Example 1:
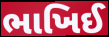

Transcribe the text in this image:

ભાખિઈ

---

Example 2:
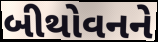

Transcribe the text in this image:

બીથોવનને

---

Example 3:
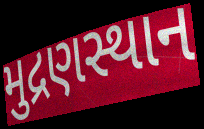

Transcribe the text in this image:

મુદ્રણસ્થાન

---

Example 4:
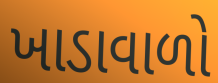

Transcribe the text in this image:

ખાડાવાળો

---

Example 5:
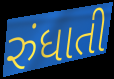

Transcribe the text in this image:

રુંધાતી